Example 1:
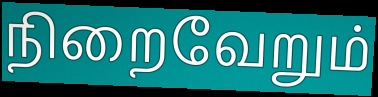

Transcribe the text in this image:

நிறைவேறும்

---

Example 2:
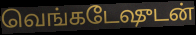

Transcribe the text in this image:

வெங்கடேஷுடன்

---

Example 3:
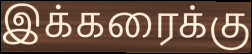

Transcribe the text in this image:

இக்கரைக்கு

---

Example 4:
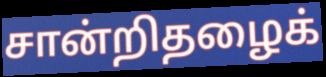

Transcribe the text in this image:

சான்றிதழைக்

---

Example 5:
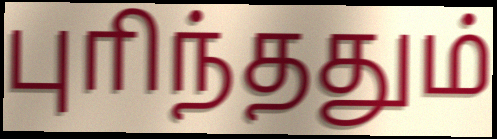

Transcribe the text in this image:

புரிந்ததும்